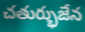
చతుర్భుజేన